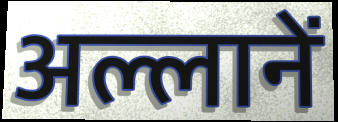
अल्लानें